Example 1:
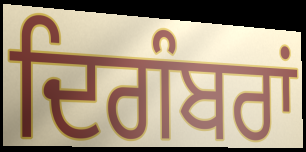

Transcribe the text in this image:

ਦਿਗੰਬਰਾਂ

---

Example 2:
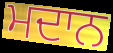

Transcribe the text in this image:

ਮਦਾਨ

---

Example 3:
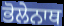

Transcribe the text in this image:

ਭੋਲੇਨਾਥ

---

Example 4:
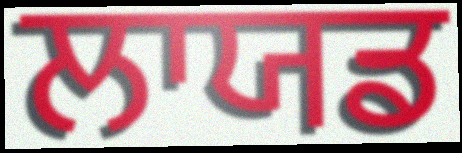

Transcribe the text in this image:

ਲਾਯਡ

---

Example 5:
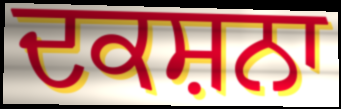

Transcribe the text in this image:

ਦਕਸ਼ਨਾ